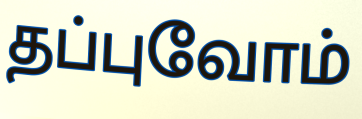
தப்புவோம்